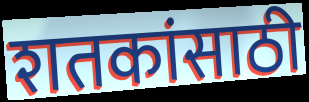
शतकांसाठी